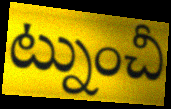
ట్నుంచీ